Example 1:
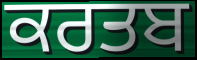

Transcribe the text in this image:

ਕਰਤਬ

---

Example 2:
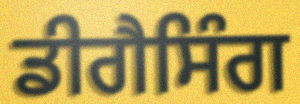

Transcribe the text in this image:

ਡੀਗੈਸਿੰਗ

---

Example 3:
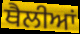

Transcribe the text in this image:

ਥੈਲੀਆਂ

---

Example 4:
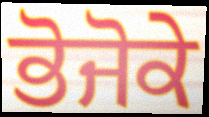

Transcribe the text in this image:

ਭੋਜੋਕੇ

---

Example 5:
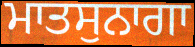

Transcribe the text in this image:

ਮਾਤਸੁਨਾਗਾ